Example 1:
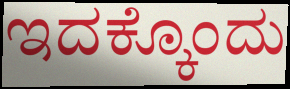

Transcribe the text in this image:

ಇದಕ್ಕೊಂದು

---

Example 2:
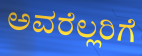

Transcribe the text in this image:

ಅವರೆಲ್ಲರಿಗೆ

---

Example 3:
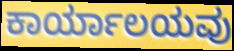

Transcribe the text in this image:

ಕಾರ್ಯಾಲಯವು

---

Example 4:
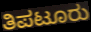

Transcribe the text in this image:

ತಿಪಟೂರು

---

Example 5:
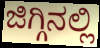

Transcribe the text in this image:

ಜಿಗ್ಗಿನಲ್ಲಿ